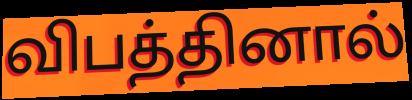
விபத்தினால்